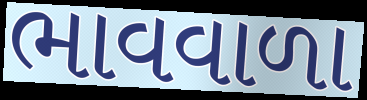
ભાવવાળા